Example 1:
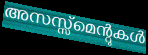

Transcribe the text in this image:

അസസ്സ്മെന്റുകൾ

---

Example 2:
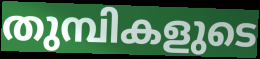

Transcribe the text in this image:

തുമ്പികളുടെ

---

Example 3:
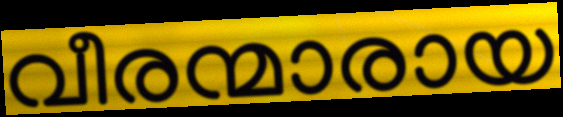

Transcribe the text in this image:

വീരന്മാരായ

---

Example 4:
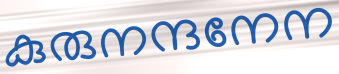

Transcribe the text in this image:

കുരുനന്ദനേന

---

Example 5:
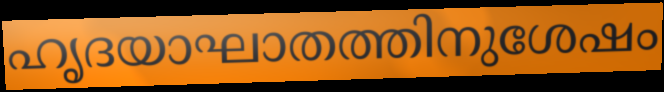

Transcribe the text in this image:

ഹൃദയാഘാതത്തിനുശേഷം